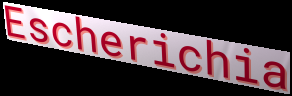
Escherichia